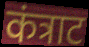
कंत्राट